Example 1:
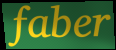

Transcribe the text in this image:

faber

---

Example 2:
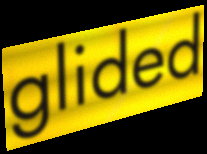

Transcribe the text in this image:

glided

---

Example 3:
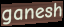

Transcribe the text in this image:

ganesh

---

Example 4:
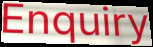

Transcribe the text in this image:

Enquiry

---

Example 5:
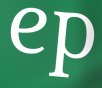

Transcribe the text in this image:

ep